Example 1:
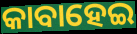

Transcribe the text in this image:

କାବାହେଇ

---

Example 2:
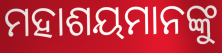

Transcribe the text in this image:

ମହାଶୟମାନଙ୍କୁ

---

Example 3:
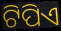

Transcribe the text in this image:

ଟିପିଏ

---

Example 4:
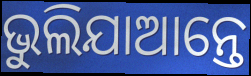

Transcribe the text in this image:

ଭୁଲିଯାଆନ୍ତେ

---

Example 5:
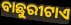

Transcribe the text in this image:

ବାଛୁରୀଟାଏ